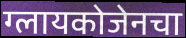
ग्लायकोजेनचा